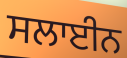
ਸਲਾਈਨ